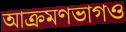
আক্রমণভাগও